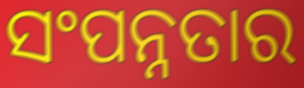
ସଂପନ୍ନତାର